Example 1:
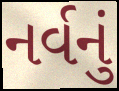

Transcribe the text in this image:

નર્વનું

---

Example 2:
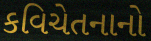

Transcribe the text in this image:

કવિચેતનાનો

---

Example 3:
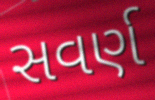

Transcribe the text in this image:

સવર્ણ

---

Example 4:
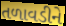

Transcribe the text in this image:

તળાવડીને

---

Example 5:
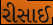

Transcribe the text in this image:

રીસાઈ